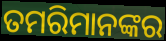
ତମରିମାନଙ୍କର